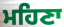
ਮਹਿਣਾ